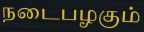
நடைபழகும்